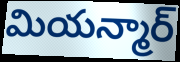
మియన్మార్